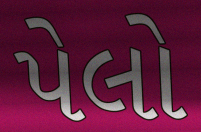
પેલો